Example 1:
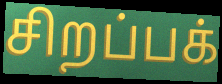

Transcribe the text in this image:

சிறப்பக்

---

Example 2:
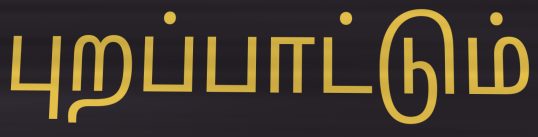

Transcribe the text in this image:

புறப்பாட்டும்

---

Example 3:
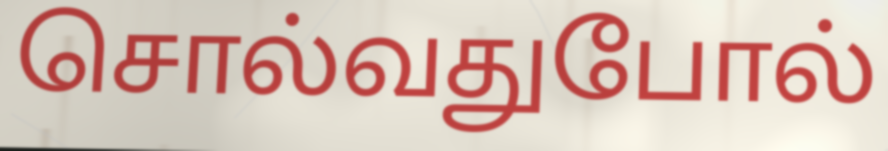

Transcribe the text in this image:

சொல்வதுபோல்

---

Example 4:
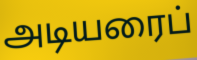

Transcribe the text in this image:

அடியரைப்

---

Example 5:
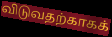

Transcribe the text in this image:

விடுவதற்காகக்